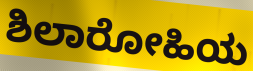
ಶಿಲಾರೋಹಿಯ